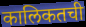
कालिकतची